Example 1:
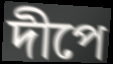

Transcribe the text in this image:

দীপে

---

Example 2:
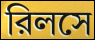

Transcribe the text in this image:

রিলসে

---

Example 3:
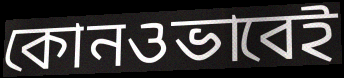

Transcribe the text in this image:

কোনওভাবেই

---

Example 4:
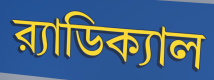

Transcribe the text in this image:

র‍্যাডিক্যাল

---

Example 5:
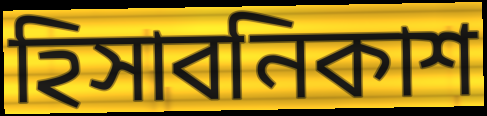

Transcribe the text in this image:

হিসাবনিকাশ